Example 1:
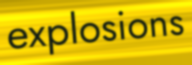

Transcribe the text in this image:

explosions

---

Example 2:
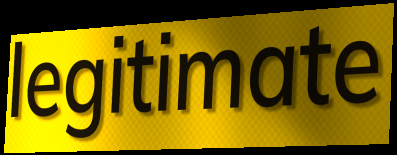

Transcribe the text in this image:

legitimate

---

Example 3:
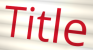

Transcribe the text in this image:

Title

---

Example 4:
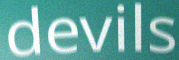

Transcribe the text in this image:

devils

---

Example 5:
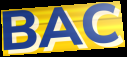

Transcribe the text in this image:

BAC